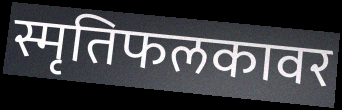
स्मृतिफलकावर